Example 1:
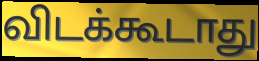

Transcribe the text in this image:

விடக்கூடாது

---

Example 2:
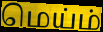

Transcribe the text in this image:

மெய்ம்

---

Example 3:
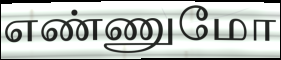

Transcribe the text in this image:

எண்ணுமோ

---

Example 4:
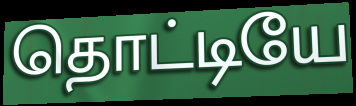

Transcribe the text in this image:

தொட்டியே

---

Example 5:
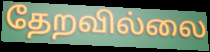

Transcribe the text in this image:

தேறவில்லை